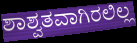
ಶಾಶ್ವತವಾಗಿರಲಿಲ್ಲ